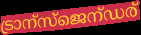
ട്രാന്സ്ജെന്ഡര്